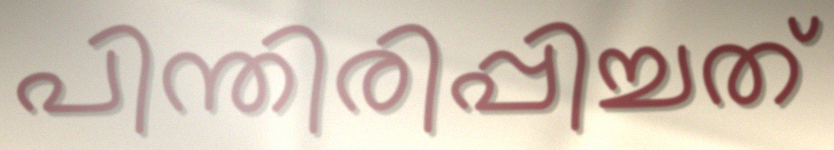
പിന്തിരിപ്പിച്ചത്